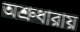
অশ্রুধারায়